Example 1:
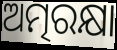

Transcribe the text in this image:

ଅତ୍ମରକ୍ଷା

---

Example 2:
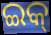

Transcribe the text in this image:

ଇକ୍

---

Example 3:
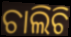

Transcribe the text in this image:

ଚାଲିଚି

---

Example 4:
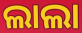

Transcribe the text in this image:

ଲାଲା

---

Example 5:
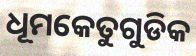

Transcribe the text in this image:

ଧୂମକେତୁଗୁଡିକ